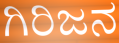
ಗಿರಿಜನ